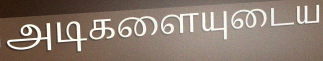
அடிகளையுடைய